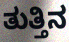
ತುತ್ತಿನ